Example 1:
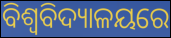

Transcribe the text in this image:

ବିଶ୍ବବିଦ୍ୟାଳୟରେ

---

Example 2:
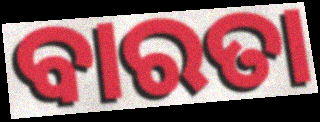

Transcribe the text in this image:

ବାରତା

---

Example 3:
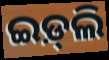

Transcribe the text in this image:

ଇଡ଼୍‌ଲି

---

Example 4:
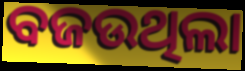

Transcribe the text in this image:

ବଜଉଥିଲା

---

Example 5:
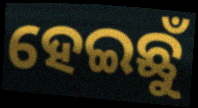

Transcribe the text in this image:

ହେଇଛୁଁ